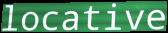
locative